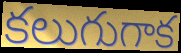
కలుగుగాక